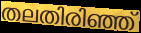
തലതിരിഞ്ഞ്